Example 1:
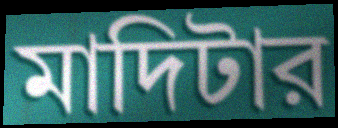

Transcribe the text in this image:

মাদিটার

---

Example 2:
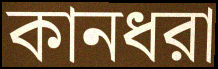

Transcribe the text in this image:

কানধরা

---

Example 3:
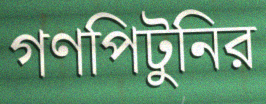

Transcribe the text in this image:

গণপিটুনির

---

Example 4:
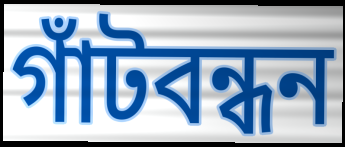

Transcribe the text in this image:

গাঁটবন্ধন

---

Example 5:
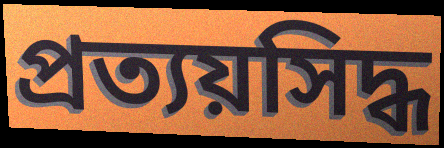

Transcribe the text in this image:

প্রত্যয়সিদ্ধ